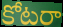
కోటరా